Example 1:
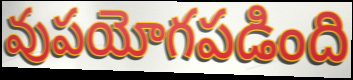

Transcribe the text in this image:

వుపయోగపడింది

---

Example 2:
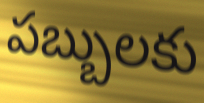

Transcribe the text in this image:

పబ్బులకు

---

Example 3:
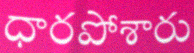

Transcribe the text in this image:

ధారపోశారు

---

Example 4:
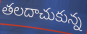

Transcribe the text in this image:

తలదాచుకున్న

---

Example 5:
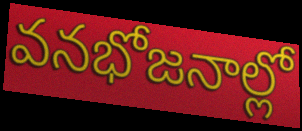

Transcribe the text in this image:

వనభోజనాల్లో